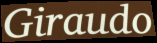
Giraudo